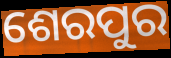
ଶେରପୁର